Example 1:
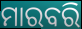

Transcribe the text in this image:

ମାରବରି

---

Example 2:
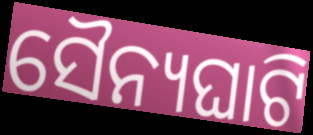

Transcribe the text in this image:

ସୈନ୍ୟଘାଟି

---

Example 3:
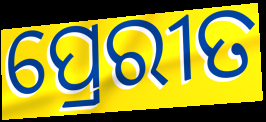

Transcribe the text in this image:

ପ୍ରେରୀତ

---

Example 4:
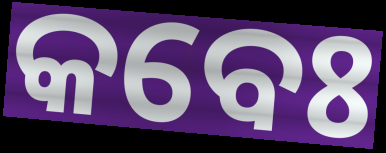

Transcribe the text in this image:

କବେଃ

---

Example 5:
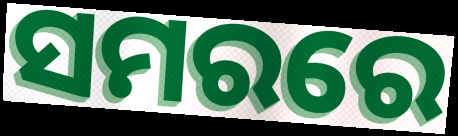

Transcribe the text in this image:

ସମରରେ